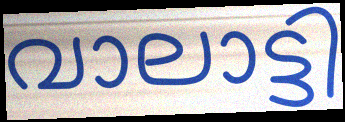
വാലാട്ടി